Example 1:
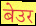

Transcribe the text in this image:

बेउर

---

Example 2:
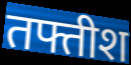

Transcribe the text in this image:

तफ्तीश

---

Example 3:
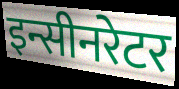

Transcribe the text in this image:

इन्सीनरेटर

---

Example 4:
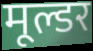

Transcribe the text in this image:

मूल्डर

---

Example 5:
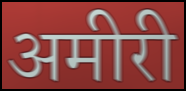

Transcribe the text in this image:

अमीरी